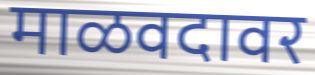
माळवदावर